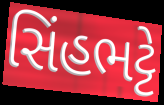
સિંહભટ્ટે